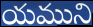
యముని